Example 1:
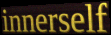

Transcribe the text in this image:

innerself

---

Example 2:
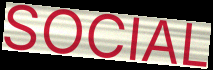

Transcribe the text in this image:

SOCIAL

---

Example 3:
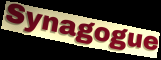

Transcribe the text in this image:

Synagogue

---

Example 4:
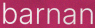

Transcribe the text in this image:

barnan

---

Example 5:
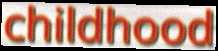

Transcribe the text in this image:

childhood